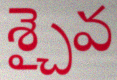
శ్చైవ